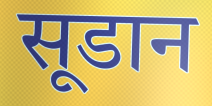
सूडान